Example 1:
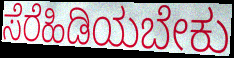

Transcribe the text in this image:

ಸೆರೆಹಿಡಿಯಬೇಕು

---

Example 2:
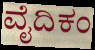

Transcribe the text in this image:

ವೈದಿಕಂ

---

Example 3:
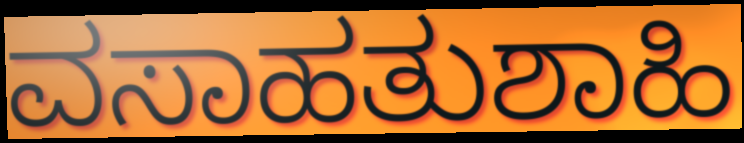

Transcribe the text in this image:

ವಸಾಹತುಶಾಹಿ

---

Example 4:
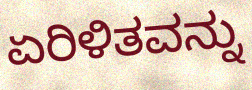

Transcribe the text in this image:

ಏರಿಳಿತವನ್ನು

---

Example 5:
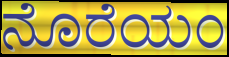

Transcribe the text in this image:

ನೊರೆಯಂ